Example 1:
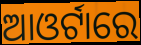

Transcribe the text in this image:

ଆଓର୍ଟାରେ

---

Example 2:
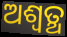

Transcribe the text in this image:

ଅଶ୍ବତ୍ଥ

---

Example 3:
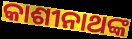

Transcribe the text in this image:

କାଶୀନାଥଙ୍କ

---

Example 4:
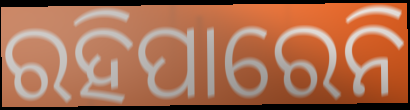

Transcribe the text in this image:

ରହିପାରେନି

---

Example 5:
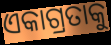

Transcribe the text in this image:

ଏକାଗ୍ରତାକୁ